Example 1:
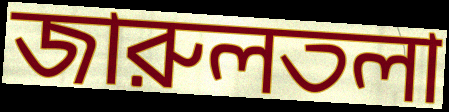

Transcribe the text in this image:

জারুলতলা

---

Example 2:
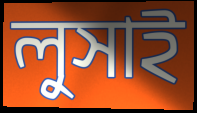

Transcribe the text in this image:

লুসাই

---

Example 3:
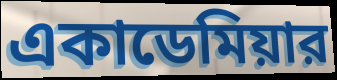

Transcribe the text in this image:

একাডেমিয়ার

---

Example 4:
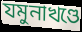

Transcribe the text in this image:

যমুনাখণ্ডে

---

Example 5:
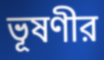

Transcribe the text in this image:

ভূষণীর